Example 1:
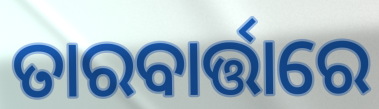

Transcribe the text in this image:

ତାରବାର୍ତ୍ତାରେ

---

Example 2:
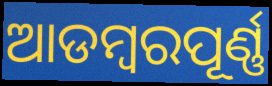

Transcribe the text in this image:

ଆଡମ୍ବରପୂର୍ଣ୍ଣ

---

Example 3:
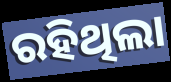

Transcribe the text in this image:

ରହିଥିଲା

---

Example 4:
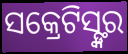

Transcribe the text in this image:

ସକ୍ରେଟିସ୍ଙ୍କର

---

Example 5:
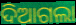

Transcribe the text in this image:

ଦିଆଗଲା